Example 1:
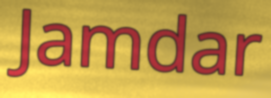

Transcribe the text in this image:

Jamdar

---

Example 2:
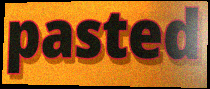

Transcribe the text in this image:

pasted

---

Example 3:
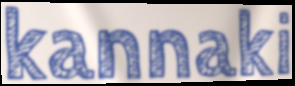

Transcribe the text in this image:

kannaki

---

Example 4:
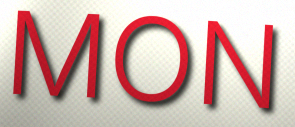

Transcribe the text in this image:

MON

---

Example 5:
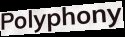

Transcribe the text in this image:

Polyphony